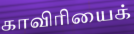
காவிரியைக்